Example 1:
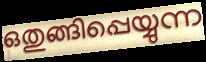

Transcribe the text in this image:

ഒതുങ്ങിപ്പെയ്യുന്ന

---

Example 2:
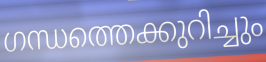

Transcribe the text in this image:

ഗന്ധത്തെക്കുറിച്ചും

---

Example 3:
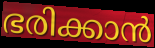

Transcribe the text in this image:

ഭരിക്കാൻ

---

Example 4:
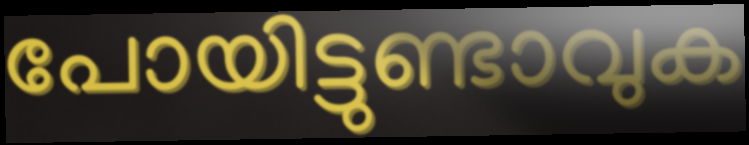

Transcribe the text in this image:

പോയിട്ടുണ്ടാവുക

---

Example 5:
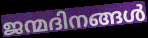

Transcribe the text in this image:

ജന്മദിനങ്ങൾ